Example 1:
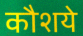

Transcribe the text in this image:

कौशये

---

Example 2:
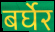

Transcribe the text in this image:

बर्घेर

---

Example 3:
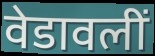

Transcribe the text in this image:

वेडावलीं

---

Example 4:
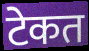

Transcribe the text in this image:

टेकत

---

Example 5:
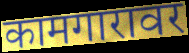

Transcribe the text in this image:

कामगारावर